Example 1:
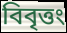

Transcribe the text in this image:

বিবৃত্তং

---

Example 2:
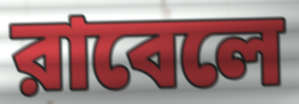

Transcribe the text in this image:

রাবেলে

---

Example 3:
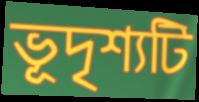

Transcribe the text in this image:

ভূদৃশ্যটি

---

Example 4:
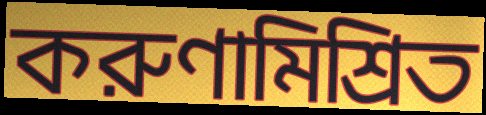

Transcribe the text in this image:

করুণামিশ্রিত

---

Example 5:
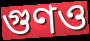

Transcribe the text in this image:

গুণও